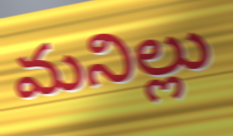
మనిల్లు